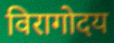
विरागोदय